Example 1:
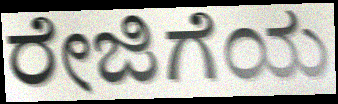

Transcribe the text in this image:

ರೇಜಿಗೆಯ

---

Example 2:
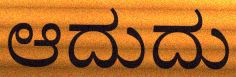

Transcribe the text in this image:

ಆದುದು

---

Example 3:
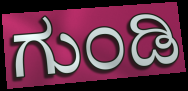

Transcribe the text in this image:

ಗುಂಡಿ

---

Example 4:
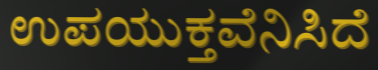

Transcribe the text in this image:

ಉಪಯುಕ್ತವೆನಿಸಿದೆ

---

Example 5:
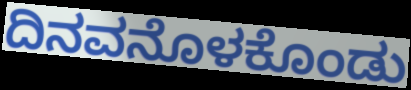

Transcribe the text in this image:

ದಿನವನೊಳಕೊಂಡು